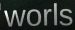
worls